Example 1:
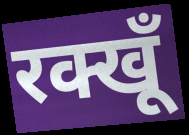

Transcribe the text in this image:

रक्खूँ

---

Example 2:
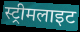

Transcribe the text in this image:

स्ट्रीमलाइट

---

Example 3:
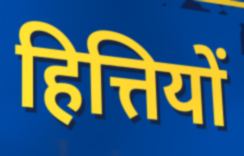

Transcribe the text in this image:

हित्तियों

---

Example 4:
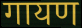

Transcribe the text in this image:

गायण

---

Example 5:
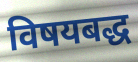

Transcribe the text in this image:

विषयबद्ध